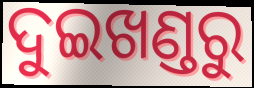
ଦୁଇଖଣ୍ଡରୁ